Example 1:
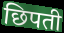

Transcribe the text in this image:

छिपती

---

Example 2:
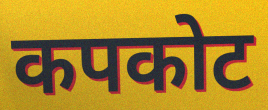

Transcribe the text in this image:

कपकोट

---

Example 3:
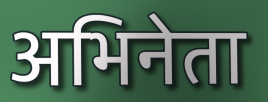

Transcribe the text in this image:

अभिनेता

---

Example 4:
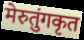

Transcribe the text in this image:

मेरुतुंगकृत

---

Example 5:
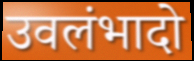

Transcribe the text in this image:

उवलंभादो